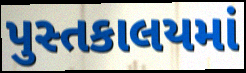
પુસ્તકાલયમાં